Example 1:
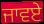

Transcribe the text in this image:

ਜਾਵਏ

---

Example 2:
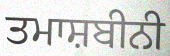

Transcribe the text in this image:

ਤਮਾਸ਼ਬੀਨੀ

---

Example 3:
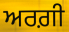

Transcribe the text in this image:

ਅਰਗ਼ੀ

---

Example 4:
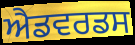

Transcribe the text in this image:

ਐਡਵਰਡਸ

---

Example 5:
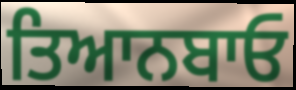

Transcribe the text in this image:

ਤਿਆਨਬਾਓ